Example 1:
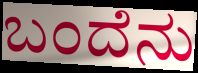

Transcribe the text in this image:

ಬಂದೆನು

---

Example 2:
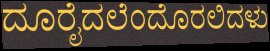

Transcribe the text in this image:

ದೂರೈದಲೆಂದೊರಲಿದಳು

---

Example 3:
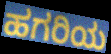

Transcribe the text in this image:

ಹಗರಿಯ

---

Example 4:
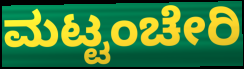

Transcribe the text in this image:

ಮಟ್ಟಂಚೇರಿ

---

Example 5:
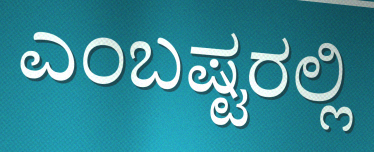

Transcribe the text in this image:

ಎಂಬಷ್ಟರಲ್ಲಿ